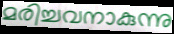
മരിച്ചവനാകുന്നു